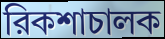
রিকশাচালক